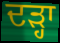
ਦੜ੍ਹਾ